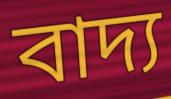
বাদ্য